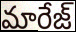
మారేజ్